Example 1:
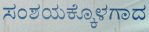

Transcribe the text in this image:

ಸಂಶಯಕ್ಕೊಳಗಾದ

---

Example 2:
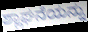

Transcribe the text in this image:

ಶ್ಲಾಘನೆಯನ್ನು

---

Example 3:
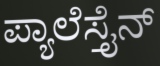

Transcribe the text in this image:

ಪ್ಯಾಲೆಸ್ತೈನ್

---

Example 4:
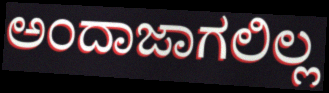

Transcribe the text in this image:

ಅಂದಾಜಾಗಲಿಲ್ಲ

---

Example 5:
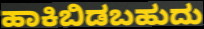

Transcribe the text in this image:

ಹಾಕಿಬಿಡಬಹುದು